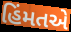
હિંમતએ